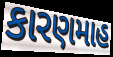
કારણમાહ